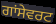
ਗਾਂਸੇਵਰਟ